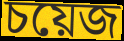
চয়েজ